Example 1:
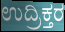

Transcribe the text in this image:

ಉದ್ರಿಕ್ತರ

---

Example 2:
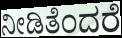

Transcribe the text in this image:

ನೀಡಿತೆಂದರೆ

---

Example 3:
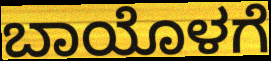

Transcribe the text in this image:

ಬಾಯೊಳಗೆ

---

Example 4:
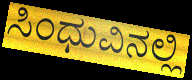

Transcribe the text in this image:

ಸಿಂಧುವಿನಲ್ಲಿ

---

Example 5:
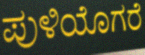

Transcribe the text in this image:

ಪುಳಿಯೊಗರೆ